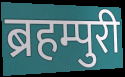
ब्रहम्पुरी